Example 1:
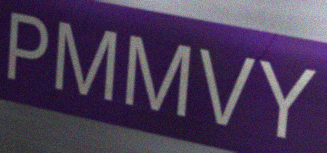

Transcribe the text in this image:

PMMVY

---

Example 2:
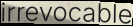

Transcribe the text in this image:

irrevocable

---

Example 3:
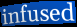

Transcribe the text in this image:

infused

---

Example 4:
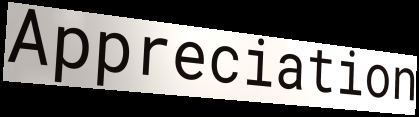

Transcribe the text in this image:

Appreciation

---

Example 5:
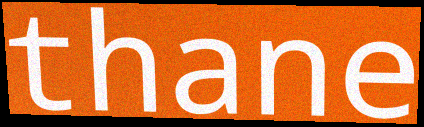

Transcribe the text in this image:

thane